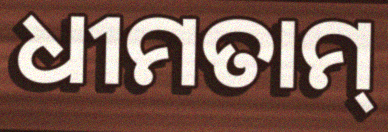
ଧୀମତାମ୍